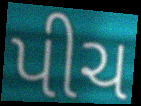
પીચ